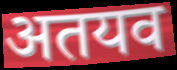
अतयव